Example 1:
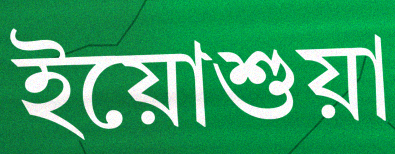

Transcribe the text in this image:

ইয়োশুয়া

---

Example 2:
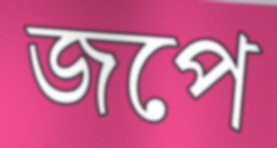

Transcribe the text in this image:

জপে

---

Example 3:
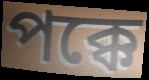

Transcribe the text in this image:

পক্কে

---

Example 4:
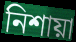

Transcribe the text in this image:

নিশায়া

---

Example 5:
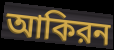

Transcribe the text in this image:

আকিরন